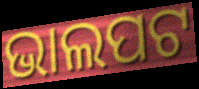
ଭାଲପଟ